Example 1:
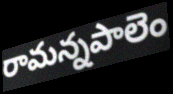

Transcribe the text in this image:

రామన్నపాలెం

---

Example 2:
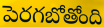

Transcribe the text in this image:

పెరగబోతోంది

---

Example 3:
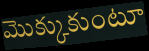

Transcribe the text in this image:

మొక్కుకుంటూ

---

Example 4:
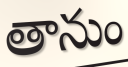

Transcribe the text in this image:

తానుం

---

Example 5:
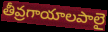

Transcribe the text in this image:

తీవ్రగాయాలపాలై